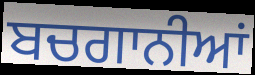
ਬਚਗਾਨੀਆਂ